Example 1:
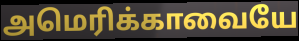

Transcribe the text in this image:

அமெரிக்காவையே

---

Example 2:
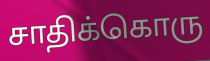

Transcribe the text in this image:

சாதிக்கொரு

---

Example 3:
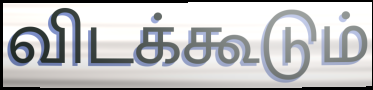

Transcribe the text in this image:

விடக்கூடும்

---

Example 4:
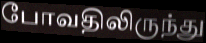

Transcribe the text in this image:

போவதிலிருந்து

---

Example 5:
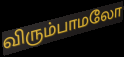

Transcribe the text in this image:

விரும்பாமலோ